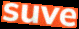
suve